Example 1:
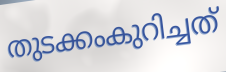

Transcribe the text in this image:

തുടക്കംകുറിച്ചത്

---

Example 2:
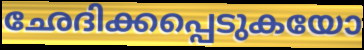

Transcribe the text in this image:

ഛേദിക്കപ്പെടുകയോ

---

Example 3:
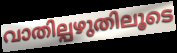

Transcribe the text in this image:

വാതില്പഴുതിലൂടെ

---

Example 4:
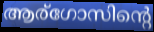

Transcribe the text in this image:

ആര്ഗോസിന്റെ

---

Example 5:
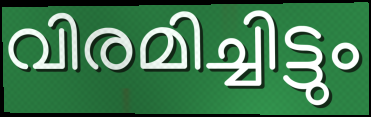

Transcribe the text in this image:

വിരമിച്ചിട്ടും